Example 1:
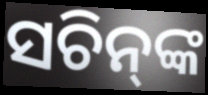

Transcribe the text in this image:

ସଚିନ୍‌ଙ୍କ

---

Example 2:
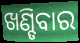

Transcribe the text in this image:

ଖଣ୍ଡିବାର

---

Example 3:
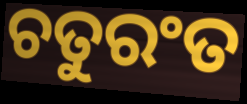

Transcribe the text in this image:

ଚତୁରଂତ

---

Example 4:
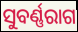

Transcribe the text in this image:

ସୁବର୍ଣ୍ଣରାଗ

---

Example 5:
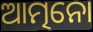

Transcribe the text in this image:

ଆତ୍ମନୋ